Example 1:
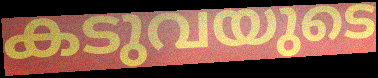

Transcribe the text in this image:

കടുവയുടെ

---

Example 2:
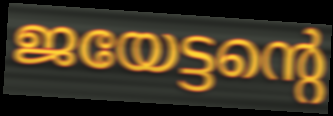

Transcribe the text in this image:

ജയേട്ടന്റെ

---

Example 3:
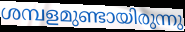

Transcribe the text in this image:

ശമ്പളമുണ്ടായിരുന്നു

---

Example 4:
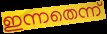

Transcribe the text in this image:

ഇന്നതെന്ന്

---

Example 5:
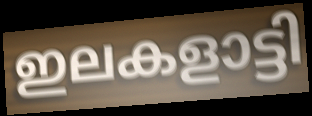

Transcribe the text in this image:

ഇലകളാട്ടി